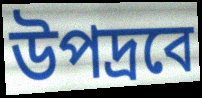
উপদ্রবে